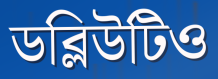
ডব্লিউটিও